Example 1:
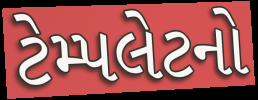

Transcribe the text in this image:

ટેમ્પલેટનો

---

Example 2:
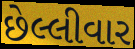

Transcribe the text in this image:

છેલ્લીવાર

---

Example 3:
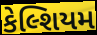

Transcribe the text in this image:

કેલ્શિયમ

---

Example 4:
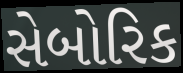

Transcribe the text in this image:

સેબોરિક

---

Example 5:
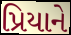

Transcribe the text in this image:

પ્રિયાને